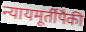
न्यायमूर्तीपैकी